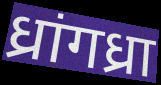
ध्रांगध्रा